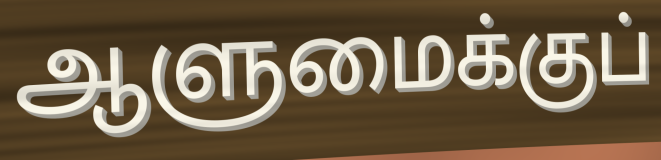
ஆளுமைக்குப்